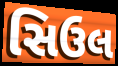
સિઉલ